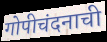
गोपीचंदनाची